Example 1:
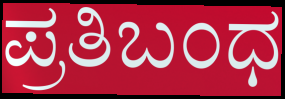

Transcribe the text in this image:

ಪ್ರತಿಬಂಧ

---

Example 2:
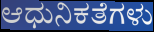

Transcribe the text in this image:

ಆಧುನಿಕತೆಗಳು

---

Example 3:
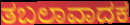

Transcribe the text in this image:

ತಬಲಾವಾದಕ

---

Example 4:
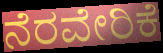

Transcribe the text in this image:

ನೆರವೇರಿಕೆ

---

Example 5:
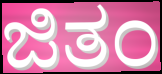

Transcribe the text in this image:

ಜಿತಂ